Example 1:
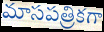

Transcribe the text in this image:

మాసపత్రికగా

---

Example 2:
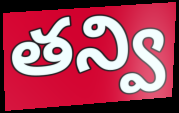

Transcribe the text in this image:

తన్వి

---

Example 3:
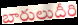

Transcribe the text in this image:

బారులుదీరి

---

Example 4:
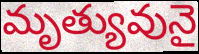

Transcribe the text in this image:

మృత్యువునై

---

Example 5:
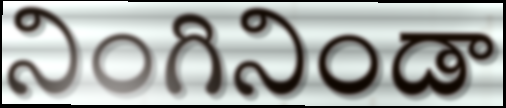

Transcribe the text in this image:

నింగినిండా